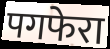
पगफेरा